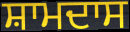
ਸ਼ਾਮਦਾਸ